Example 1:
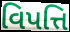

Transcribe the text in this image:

વિપત્તિ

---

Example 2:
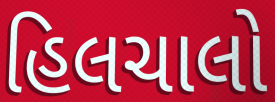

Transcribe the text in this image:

હિલચાલો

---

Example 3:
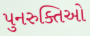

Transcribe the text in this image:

પુનરુક્તિઓ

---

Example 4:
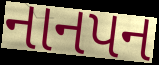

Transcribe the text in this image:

નાનપન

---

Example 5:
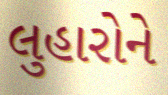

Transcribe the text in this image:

લુહારોને